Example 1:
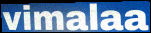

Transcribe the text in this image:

vimalaa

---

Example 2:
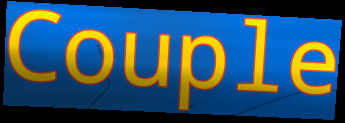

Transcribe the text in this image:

Couple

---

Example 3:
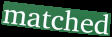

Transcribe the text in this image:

matched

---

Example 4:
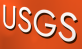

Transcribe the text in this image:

USGS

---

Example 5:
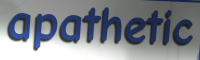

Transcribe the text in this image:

apathetic